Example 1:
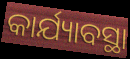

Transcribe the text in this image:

କାର୍ଯ୍ୟାବସ୍ଥା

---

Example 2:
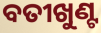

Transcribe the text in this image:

ବତୀଖୁଣ୍ଟ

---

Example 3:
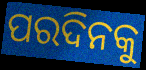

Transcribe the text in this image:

ପରଦିନକୁ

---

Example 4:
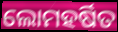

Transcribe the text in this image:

ଲୋମହର୍ଷିତ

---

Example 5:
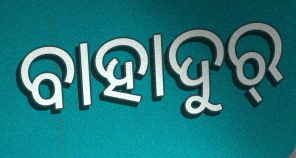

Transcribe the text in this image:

ବାହାଦୁର୍